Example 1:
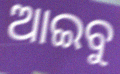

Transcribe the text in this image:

ଆଇବୁ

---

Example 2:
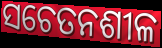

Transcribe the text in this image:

ସଚେତନଶୀଳ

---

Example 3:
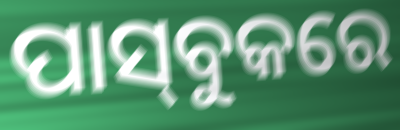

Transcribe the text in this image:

ପାସ୍‌ବୁକରେ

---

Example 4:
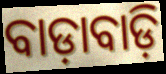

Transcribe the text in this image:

ବାଡ଼ାବାଡ଼ି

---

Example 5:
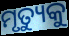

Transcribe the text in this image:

ମୃତ୍ୟୁକୁ